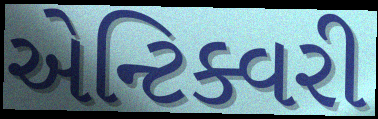
એન્ટિક્વરી